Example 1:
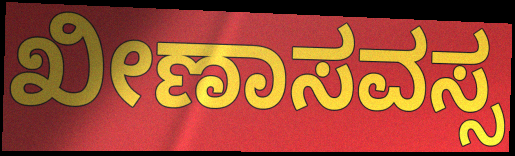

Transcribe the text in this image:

ಖೀಣಾಸವಸ್ಸ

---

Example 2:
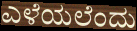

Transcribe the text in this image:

ಎಳೆಯಲೆಂದು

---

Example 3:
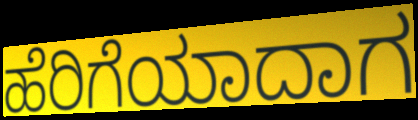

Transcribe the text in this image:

ಹೆರಿಗೆಯಾದಾಗ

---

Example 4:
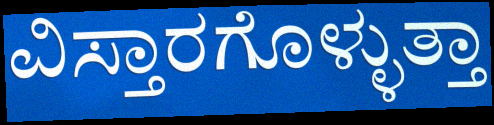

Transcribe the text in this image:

ವಿಸ್ತಾರಗೊಳ್ಳುತ್ತಾ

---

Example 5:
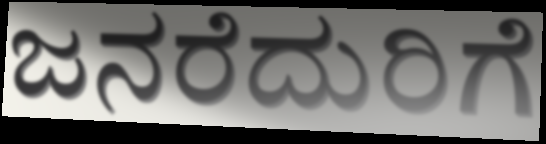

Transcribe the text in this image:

ಜನರೆದುರಿಗೆ